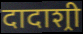
दादाश्री